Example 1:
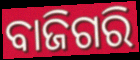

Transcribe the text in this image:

ବାଜିଗରି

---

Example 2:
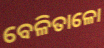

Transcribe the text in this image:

ବେଳିତାଳୋ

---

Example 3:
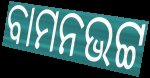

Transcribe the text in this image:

ବାମନଭଟ୍ଟ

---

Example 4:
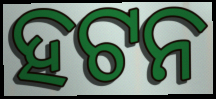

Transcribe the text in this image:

ହଟନ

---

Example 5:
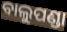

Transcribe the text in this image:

ବାଲୁପଣ୍ଡା